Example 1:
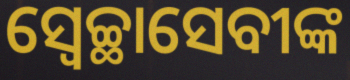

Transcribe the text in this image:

ସ୍ୱେଚ୍ଛାସେବୀଙ୍କ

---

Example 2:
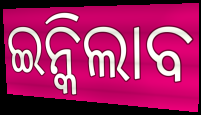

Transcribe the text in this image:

ଇନ୍କିଲାବ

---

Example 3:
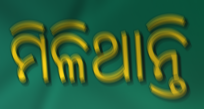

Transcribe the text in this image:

ମିଳିଥାନ୍ତି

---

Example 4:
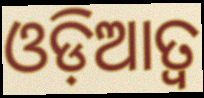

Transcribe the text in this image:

ଓଡ଼ିଆତ୍ୱ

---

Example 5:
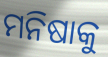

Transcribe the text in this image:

ମନିଷାକୁ